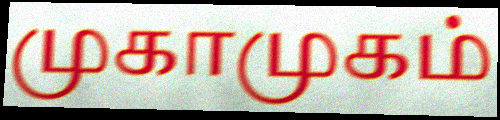
முகாமுகம்